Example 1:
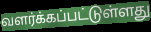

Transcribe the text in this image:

வளர்க்கப்பட்டுள்ளது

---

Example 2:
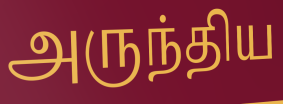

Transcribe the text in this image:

அருந்திய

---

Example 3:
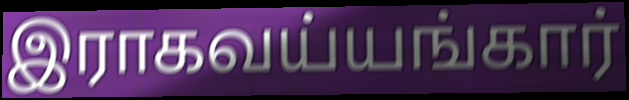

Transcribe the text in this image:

இராகவய்யங்கார்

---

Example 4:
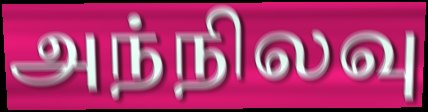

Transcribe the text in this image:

அந்நிலவு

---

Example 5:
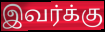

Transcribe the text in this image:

இவர்க்கு